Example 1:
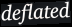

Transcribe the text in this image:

deflated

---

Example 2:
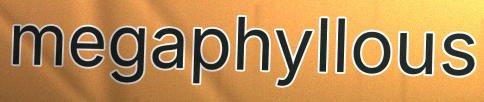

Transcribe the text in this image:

megaphyllous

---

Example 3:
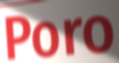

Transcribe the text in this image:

Poro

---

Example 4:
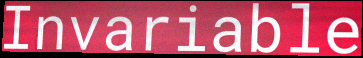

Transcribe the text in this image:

Invariable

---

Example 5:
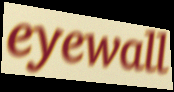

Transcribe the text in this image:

eyewall